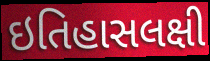
ઇતિહાસલક્ષી